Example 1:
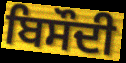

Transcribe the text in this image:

ਬਿਸੌਦੀ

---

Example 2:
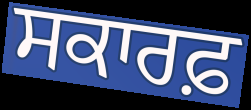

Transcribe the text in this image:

ਸਕਾਰਫ਼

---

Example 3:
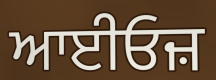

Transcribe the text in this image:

ਆਈਓਜ਼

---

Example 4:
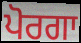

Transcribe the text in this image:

ਪੋਰਗਾ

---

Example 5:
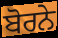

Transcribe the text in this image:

ਬੋਰਨੇ